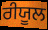
ਰੀਯੂਲ